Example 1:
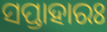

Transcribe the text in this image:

ସପ୍ତାହାରଃ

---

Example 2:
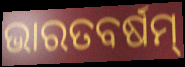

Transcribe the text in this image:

ଭାରତବର୍ଷମ୍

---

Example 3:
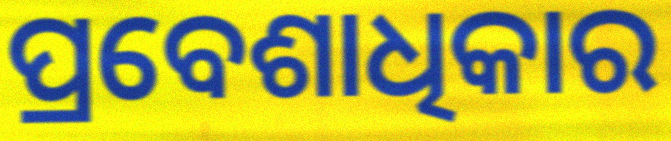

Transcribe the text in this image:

ପ୍ରବେଶାଧିକାର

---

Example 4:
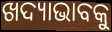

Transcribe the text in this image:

ଖଦ୍ୟାଭାବକୁ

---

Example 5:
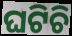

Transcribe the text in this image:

ଘଟିଚି